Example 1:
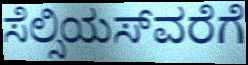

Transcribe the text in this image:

ಸೆಲ್ಸಿಯಸ್‍ವರೆಗೆ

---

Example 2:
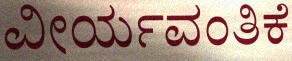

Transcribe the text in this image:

ವೀರ್ಯವಂತಿಕೆ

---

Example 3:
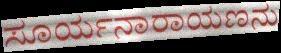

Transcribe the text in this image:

ಸೂರ್ಯನಾರಾಯಣನು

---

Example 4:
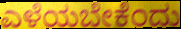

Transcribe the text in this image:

ಎಳೆಯಬೇಕೆಂದು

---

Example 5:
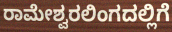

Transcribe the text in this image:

ರಾಮೇಶ್ವರಲಿಂಗದಲ್ಲಿಗೆ